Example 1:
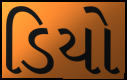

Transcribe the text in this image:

ડિયો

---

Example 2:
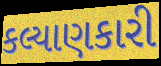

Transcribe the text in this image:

કલ્યાણકારી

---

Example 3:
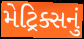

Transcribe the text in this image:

મેટ્રિક્સનું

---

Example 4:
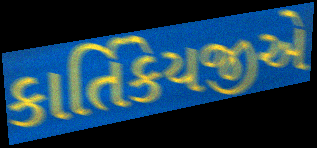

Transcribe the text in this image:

કાર્તિકેયજીએ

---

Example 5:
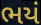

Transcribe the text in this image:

ભયં